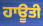
ਹਾਊਤੀ